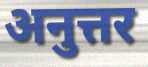
अनुत्तर